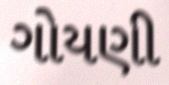
ગોયણી